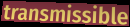
transmissible